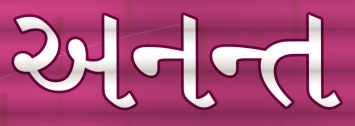
અનન્ત